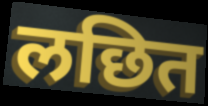
लछित